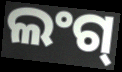
ଲଂଗ୍